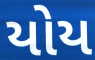
યોય